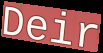
Deir